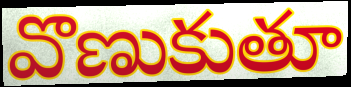
వొణుకుతూ